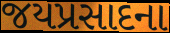
જયપ્રસાદના